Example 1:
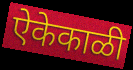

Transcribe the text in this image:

ऐकेकाळी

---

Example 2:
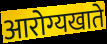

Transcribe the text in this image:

आरोग्यखाते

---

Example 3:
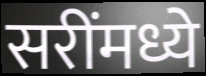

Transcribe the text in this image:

सरींमध्ये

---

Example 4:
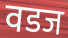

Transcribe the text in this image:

वडज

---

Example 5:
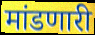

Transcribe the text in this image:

मांडणारी